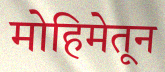
मोहिमेतून